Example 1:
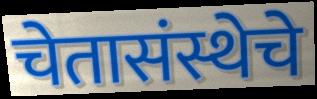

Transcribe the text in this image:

चेतासंस्थेचे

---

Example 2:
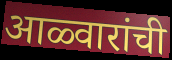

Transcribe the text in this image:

आळ्वारांची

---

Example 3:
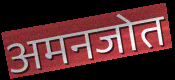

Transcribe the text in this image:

अमनजोत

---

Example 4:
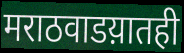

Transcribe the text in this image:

मराठवाडय़ातही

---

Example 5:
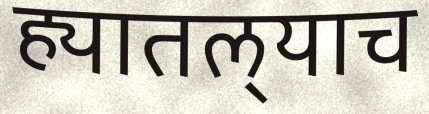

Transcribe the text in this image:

ह्यातल्याच